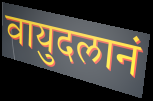
वायुदलानं